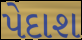
પેદાશ